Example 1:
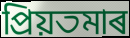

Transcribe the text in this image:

প্ৰিয়তমাৰ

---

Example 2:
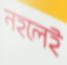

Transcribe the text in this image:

নহলেই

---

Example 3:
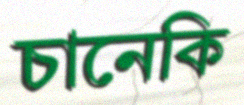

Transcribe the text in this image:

চানেকি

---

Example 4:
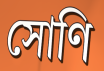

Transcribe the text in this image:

সোণি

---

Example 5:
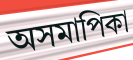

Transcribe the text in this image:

অসমাপিকা